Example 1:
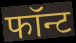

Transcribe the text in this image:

फॉन्ट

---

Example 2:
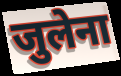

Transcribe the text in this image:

जुलेना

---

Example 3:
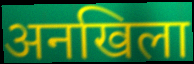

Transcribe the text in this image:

अनखिला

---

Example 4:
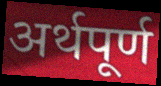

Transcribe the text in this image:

अर्थपूर्ण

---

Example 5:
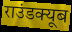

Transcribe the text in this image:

राउंडक्यूब